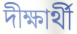
দীক্ষার্থী